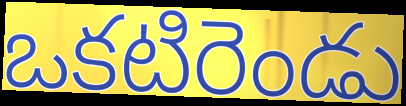
ఒకటిరెండు